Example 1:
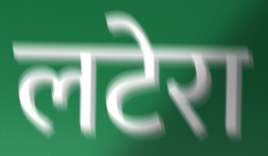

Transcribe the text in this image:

लटेरा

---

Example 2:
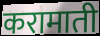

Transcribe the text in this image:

करामाती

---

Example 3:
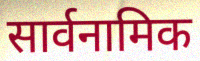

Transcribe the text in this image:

सार्वनामिक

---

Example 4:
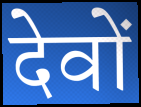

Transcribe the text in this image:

देवों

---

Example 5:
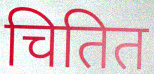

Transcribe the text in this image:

चितित